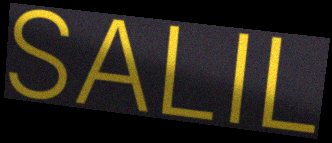
SALIL